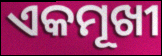
ଏକମୂଖୀ